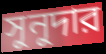
সুনুদার